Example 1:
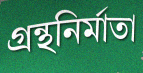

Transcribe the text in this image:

গ্রন্থনির্মাতা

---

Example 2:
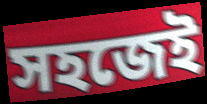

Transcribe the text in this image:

সহজেই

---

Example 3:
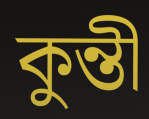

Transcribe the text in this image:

কুন্তী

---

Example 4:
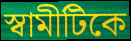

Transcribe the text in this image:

স্বামীটিকে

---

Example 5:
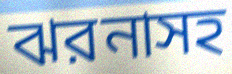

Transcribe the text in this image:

ঝরনাসহ